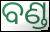
ବଣ୍ଡ